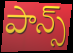
పాన్స్